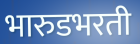
भारुडभरती